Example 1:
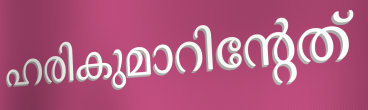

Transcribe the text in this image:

ഹരികുമാറിന്റേത്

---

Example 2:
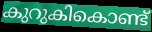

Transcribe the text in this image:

കുറുകികൊണ്ട്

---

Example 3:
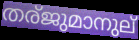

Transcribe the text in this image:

തര്ജുമാനുല്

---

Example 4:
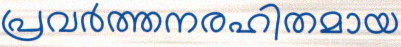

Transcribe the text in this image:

പ്രവർത്തനരഹിതമായ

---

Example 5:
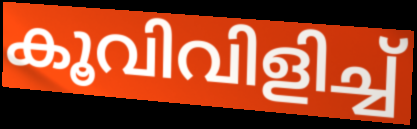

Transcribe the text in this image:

കൂവിവിളിച്ച്